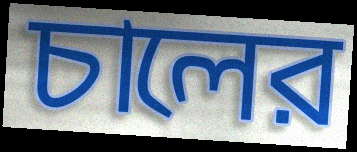
চালের